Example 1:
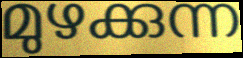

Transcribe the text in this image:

മുഴക്കുന്ന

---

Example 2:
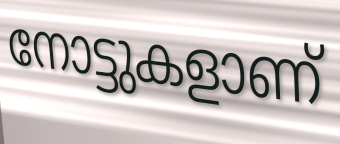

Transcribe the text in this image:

നോട്ടുകളാണ്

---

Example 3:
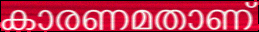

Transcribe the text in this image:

കാരണമതാണ്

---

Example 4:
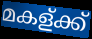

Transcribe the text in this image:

മകള്ക്ക്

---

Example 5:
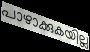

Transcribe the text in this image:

പാഴാക്കുകയില്ല